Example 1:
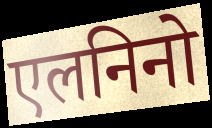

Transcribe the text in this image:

एलनिनो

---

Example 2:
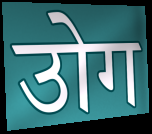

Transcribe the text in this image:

उोग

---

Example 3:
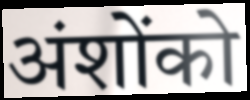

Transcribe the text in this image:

अंशोंको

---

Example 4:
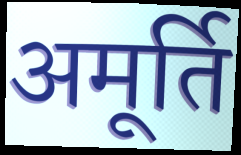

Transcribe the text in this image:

अमूर्ति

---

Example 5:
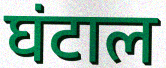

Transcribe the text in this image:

घंटाल